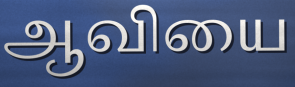
ஆவியை